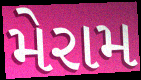
મેરામ